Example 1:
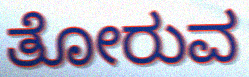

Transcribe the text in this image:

ತೋರುವ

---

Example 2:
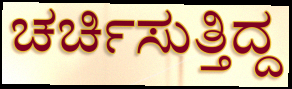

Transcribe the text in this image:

ಚರ್ಚಿಸುತ್ತಿದ್ದ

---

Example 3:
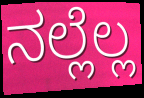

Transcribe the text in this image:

ನಲ್ಲೆಲ್ಲ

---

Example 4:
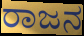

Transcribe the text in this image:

ರಾಜನ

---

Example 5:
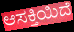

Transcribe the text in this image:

ಆಸಕ್ತಿಯಿದೆ